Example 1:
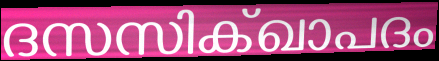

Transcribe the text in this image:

ദസസിക്ഖാപദം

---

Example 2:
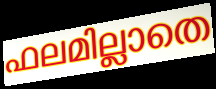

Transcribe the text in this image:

ഫലമില്ലാതെ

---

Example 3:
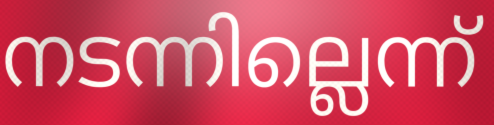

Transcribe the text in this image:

നടന്നില്ലെന്ന്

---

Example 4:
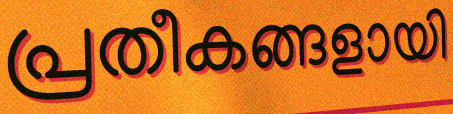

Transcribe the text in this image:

പ്രതീകങ്ങളായി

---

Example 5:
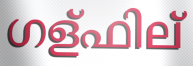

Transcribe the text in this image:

ഗള്ഫില്